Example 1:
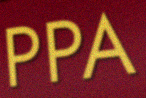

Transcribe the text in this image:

PPA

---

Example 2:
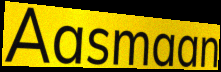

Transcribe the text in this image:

Aasmaan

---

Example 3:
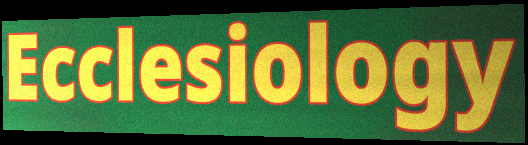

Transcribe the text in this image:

Ecclesiology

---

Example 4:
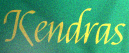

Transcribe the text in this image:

Kendras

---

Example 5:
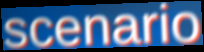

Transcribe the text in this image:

scenario